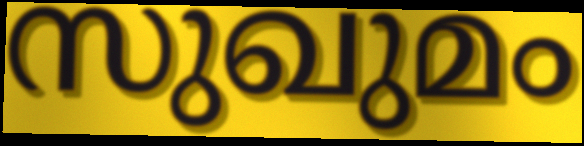
സുഖുമം